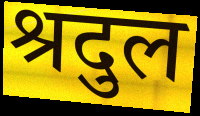
श्रदुल